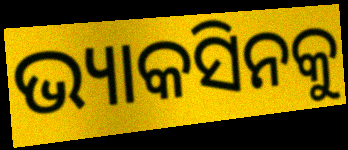
ଭ୍ୟାକସିନକୁ